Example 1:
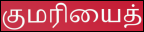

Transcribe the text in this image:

குமரியைத்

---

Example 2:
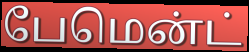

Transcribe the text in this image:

பேமென்ட்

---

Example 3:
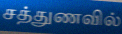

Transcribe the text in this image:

சத்துணவில்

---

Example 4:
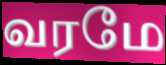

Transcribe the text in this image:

வரமே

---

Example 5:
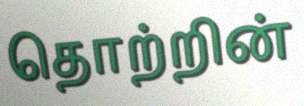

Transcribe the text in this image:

தொற்றின்